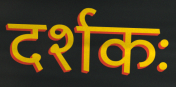
दर्शकः